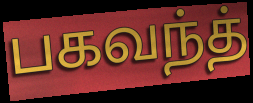
பகவந்த்